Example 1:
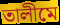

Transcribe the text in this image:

তালীমে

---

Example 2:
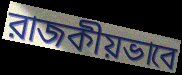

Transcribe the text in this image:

রাজকীয়ভাবে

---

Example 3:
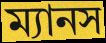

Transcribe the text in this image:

ম্যানস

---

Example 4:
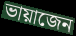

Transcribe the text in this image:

ভায়াজেন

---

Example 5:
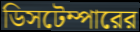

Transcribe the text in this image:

ডিসটেম্পারের